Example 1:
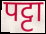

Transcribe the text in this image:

पट्टा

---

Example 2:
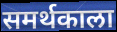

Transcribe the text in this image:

समर्थकाला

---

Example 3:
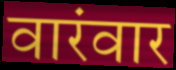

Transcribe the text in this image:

वारंवार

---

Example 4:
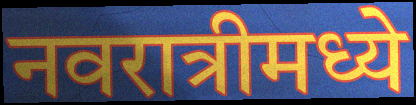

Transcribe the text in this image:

नवरात्रीमध्ये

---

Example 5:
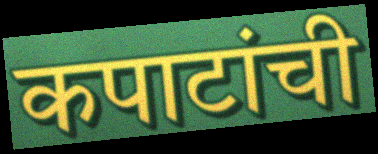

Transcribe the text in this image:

कपाटांची